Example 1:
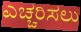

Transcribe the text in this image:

ಎಚ್ಚರಿಸಲು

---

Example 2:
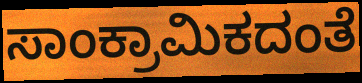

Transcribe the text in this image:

ಸಾಂಕ್ರಾಮಿಕದಂತೆ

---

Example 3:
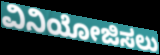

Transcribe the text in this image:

ವಿನಿಯೋಜಿಸಲು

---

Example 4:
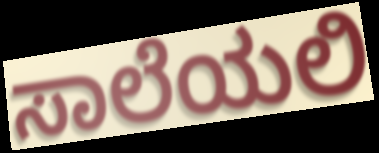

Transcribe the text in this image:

ಸಾಲೆಯಲಿ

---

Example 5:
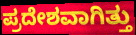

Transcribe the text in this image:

ಪ್ರದೇಶವಾಗಿತ್ತು